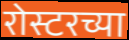
रोस्टरच्या